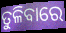
ତୁଳିବାରେ